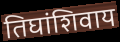
तिघांशिवाय